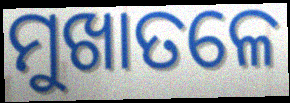
ମୁଖାତଳେ